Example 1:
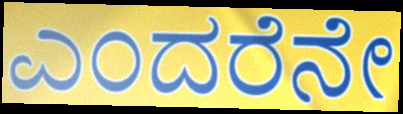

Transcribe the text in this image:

ಎಂದರೆನೇ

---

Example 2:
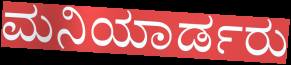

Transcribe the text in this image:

ಮನಿಯಾರ್ಡರು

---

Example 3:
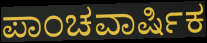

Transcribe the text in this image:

ಪಾಂಚವಾರ್ಷಿಕ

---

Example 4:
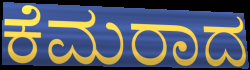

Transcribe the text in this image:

ಕೆಮರಾದ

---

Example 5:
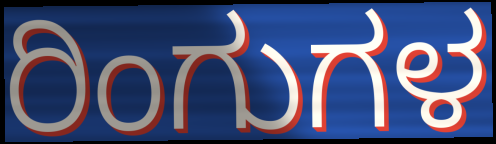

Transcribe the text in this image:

ರಿಂಗುಗಳ